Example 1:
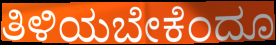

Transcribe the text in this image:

ತಿಳಿಯಬೇಕೆಂದೂ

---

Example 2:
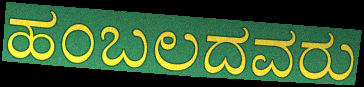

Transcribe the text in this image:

ಹಂಬಲದವರು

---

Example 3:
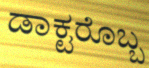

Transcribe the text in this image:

ಡಾಕ್ಟರೊಬ್ಬ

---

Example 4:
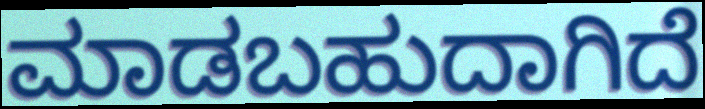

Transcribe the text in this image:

ಮಾಡಬಹುದಾಗಿದೆ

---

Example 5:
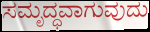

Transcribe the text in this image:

ಸಮೃದ್ಧವಾಗುವುದು